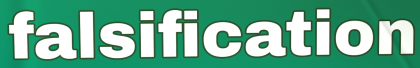
falsification